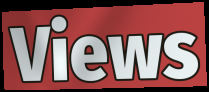
Views